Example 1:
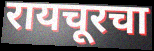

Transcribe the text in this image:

रायचूरचा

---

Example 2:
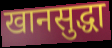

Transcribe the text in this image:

खानसुद्धा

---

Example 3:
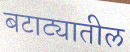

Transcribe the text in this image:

बटाट्यातील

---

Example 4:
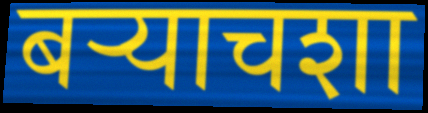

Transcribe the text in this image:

बर्‍याचशा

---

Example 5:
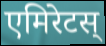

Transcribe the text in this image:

एमिरेटस्